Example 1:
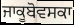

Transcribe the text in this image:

ਜਾਕੂਬੋਵਸਕਾ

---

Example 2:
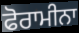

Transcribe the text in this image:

ਫੋਰਾਮੀਨਾ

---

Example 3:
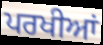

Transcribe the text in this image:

ਪਰਖੀਆਂ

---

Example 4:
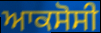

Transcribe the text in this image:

ਆਕਸੋਸੀ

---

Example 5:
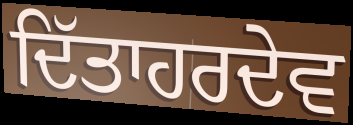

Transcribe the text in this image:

ਦਿੱਤਾਹਰਦੇਵ